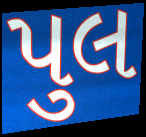
પુલ